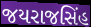
જયરાજસિંહ